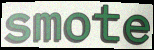
smote